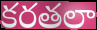
కరతలా